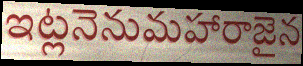
ఇట్లనెనుమహారాజైన